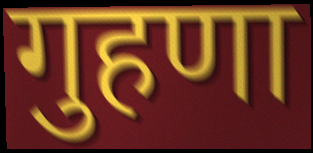
गुहणा